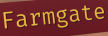
Farmgate